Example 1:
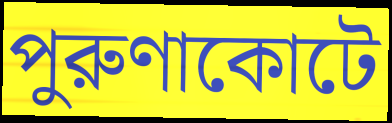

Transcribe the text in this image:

পুরুণাকোটে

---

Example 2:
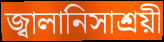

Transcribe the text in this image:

জ্বালানিসাশ্রয়ী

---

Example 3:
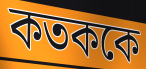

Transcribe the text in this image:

কতককে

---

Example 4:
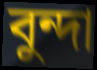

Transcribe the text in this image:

বুন্দা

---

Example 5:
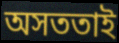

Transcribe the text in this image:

অসততাই